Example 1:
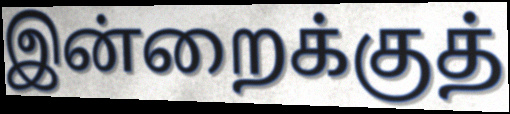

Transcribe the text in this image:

இன்றைக்குத்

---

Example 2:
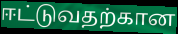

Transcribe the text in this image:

ஈட்டுவதற்கான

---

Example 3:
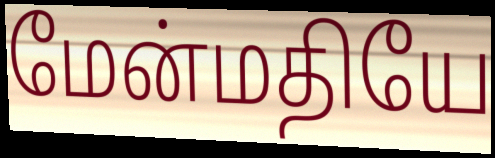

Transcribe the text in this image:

மேன்மதியே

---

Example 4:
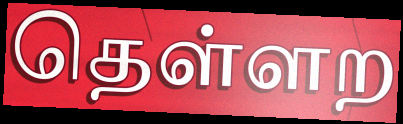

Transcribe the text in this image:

தெள்ளற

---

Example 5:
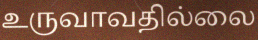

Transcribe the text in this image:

உருவாவதில்லை